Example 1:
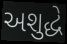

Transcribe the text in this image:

અશુદ્ધે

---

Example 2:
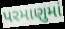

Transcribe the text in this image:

પરમાણુમાં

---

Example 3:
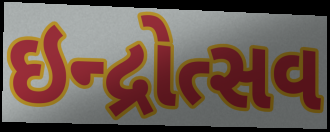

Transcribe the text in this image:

ઇન્દ્રોત્સવ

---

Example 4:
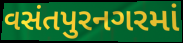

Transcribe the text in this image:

વસંતપુરનગરમાં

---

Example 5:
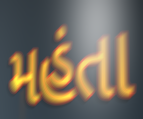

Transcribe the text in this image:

મહંતા